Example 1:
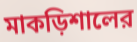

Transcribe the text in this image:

মাকড়িশালের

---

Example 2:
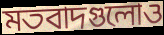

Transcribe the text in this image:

মতবাদগুলোও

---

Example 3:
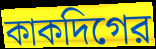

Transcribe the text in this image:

কাকদিগের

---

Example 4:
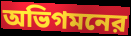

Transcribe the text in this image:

অভিগমনের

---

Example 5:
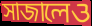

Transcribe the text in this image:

সাজালেও